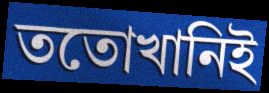
ততোখানিই